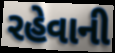
રહેવાની